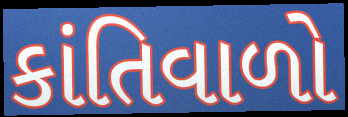
કાંતિવાળો